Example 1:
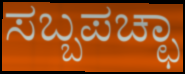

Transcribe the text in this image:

ಸಬ್ಬಪಚ್ಛಾ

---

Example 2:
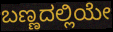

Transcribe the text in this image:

ಬಣ್ಣದಲ್ಲಿಯೇ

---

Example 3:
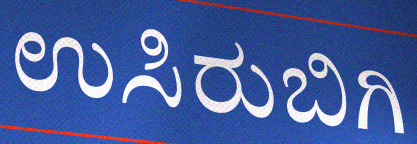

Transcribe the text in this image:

ಉಸಿರುಬಿಗಿ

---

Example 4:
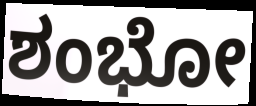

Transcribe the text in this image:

ಶಂಭೋ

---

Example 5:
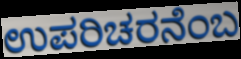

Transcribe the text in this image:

ಉಪರಿಚರನೆಂಬ